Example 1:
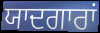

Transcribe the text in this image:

ਯਾਦਗਾਰਾਂ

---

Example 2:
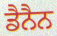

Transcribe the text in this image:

ਡੈਨੈਨ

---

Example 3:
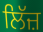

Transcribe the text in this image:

ਲਿੱਜ਼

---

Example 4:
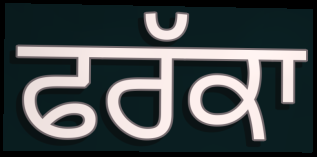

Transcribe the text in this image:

ਫਰੱਕਾ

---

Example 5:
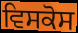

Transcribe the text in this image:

ਵਿਸਕੋਸ